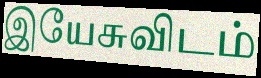
இயேசுவிடம்